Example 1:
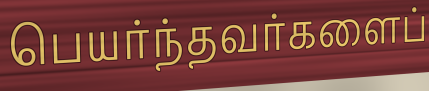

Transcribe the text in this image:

பெயர்ந்தவர்களைப்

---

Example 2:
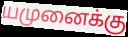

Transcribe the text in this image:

யமுனைக்கு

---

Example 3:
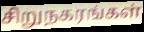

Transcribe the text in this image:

சிறுநகரங்கள்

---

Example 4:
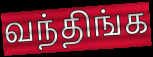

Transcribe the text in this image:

வந்திங்க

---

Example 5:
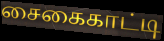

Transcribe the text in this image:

சைகைகாட்டி